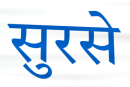
सुरसे